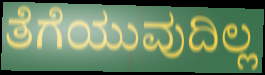
ತೆಗೆಯುವುದಿಲ್ಲ